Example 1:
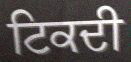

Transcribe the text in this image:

ਟਿਕਦੀ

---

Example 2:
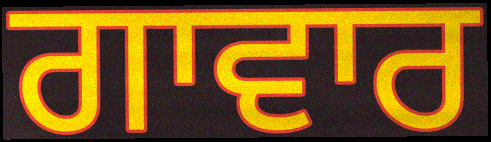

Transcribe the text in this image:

ਗਾਵਾਰ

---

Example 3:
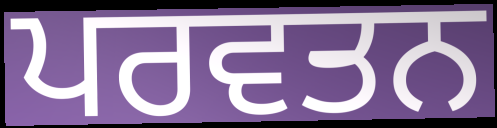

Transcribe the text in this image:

ਪਰਵਤਨ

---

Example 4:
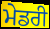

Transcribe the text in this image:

ਮੇਡਰੀ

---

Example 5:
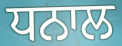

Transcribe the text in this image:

ਧਨਾਲ